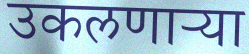
उकलणाऱ्या